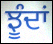
ਝੂੰਦਾਂ